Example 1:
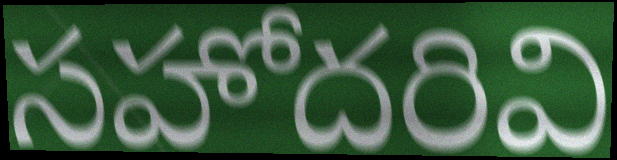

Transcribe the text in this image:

సహోదరివి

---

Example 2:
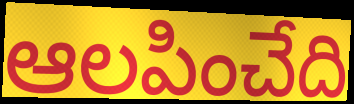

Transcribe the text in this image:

ఆలపించేది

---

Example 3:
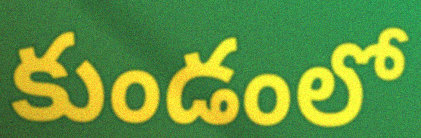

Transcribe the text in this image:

కుండంలో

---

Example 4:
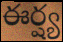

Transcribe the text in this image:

ఈర్ష్య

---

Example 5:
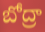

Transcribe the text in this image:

బోద్రా